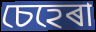
চেহেৰা